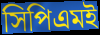
সিপিএমই